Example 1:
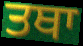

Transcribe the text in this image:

ਤਥਾ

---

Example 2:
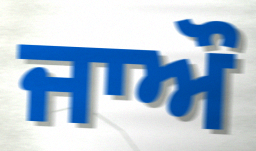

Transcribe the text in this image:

ਜਾਔ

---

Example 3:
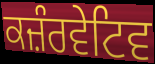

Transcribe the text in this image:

ਕਜ਼ੰਰਵੇਟਿਵ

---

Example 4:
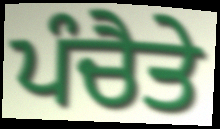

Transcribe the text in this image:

ਪੰਚੈਤੇ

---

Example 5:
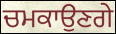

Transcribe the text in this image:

ਚਮਕਾਉਣਗੇ